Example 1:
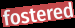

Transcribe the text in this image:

fostered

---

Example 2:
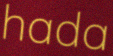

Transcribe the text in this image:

hada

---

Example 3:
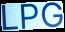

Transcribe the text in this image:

LPG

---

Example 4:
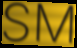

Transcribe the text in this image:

SM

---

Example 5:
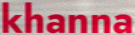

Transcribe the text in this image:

khanna